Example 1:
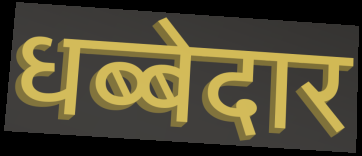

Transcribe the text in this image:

धब्बेदार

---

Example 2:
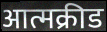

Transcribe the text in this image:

आत्मक्रीड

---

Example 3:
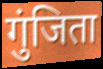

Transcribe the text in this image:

गुंजिता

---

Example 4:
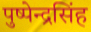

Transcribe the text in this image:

पुष्पेन्द्रसिंह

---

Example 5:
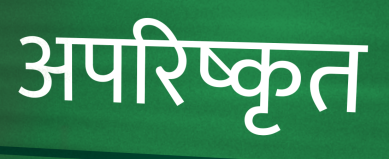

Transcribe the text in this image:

अपरिष्कृत